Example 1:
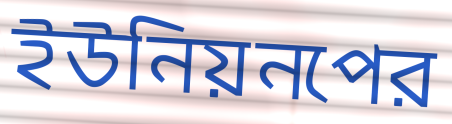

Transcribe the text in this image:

ইউনিয়নপের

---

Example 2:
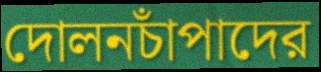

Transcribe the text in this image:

দোলনচাঁপাদের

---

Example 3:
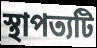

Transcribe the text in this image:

স্থাপত্যটি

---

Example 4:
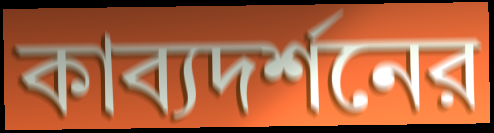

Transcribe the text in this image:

কাব্যদর্শনের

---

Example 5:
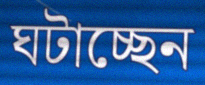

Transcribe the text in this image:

ঘটাচ্ছেন